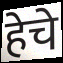
हेचे